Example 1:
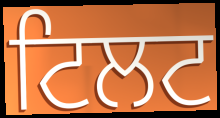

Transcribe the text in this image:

ਟਿਲਟ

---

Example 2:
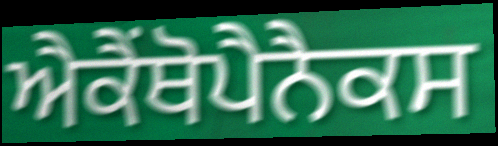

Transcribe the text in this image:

ਐਕੈਂਥੋਪੈਨੈਕਸ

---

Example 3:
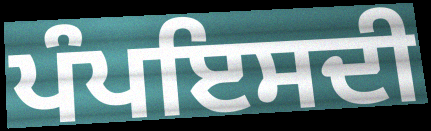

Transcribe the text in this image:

ਪੰਪਇਸਦੀ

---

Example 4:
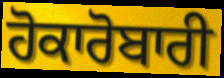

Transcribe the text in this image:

ਹੋਕਾਰੋਬਾਰੀ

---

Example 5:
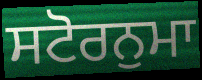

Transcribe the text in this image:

ਸਟੋਰਨੁਮਾ